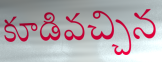
కూడివచ్చిన